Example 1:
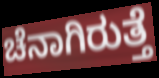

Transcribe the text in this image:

ಚೆನಾಗಿರುತ್ತೆ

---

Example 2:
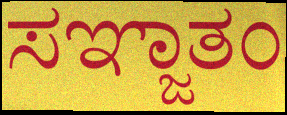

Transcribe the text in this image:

ಸಞ್ಜಾತಂ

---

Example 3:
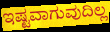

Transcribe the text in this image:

ಇಷ್ಟವಾಗುವುದಿಲ್ಲ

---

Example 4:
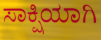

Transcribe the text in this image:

ಸಾಕ್ಷಿಯಾಗಿ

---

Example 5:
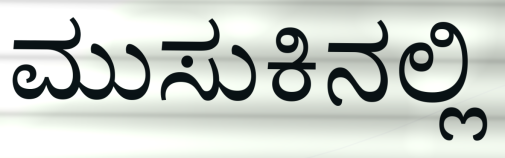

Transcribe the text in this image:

ಮುಸುಕಿನಲ್ಲಿ